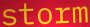
storm